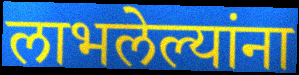
लाभलेल्यांना